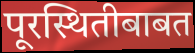
पूरस्थितीबाबत